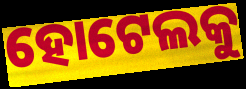
ହୋଟେଲକୁ